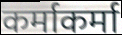
कर्माकर्मा